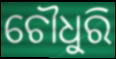
ଚୌଧୁରି